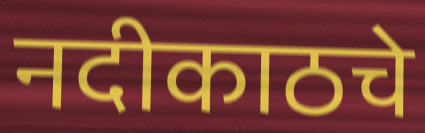
नदीकाठचे